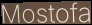
Mostofa